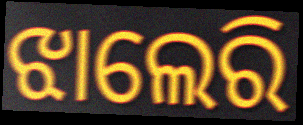
ଝାଲେରି